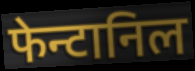
फेन्टानिल